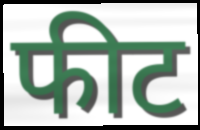
फीट